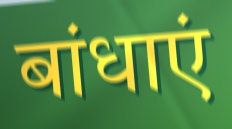
बांधाएं